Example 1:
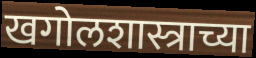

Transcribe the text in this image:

खगोलशास्त्राच्या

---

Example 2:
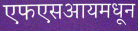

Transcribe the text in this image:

एफएसआयमधून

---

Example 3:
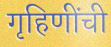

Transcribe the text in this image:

गृहिणींची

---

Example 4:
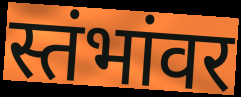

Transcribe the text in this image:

स्तंभांवर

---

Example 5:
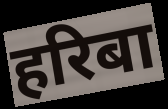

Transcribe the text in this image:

हरिबा